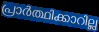
പ്രാർത്ഥിക്കാറില്ല